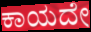
ಕಾಯದೇ